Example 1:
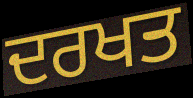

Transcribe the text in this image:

ਦਰਖਤ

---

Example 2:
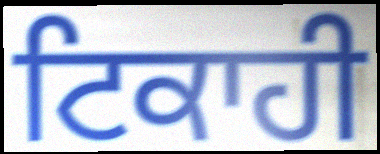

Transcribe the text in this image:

ਟਿਕਾਹੀ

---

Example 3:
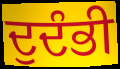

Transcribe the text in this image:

ਦੁਦੰਭੀ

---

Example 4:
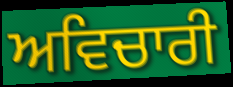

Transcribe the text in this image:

ਅਵਿਚਾਰੀ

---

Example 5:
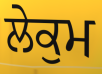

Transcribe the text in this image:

ਲੇਕੁਮ